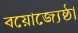
বয়োজ্যেষ্ঠা